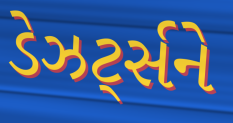
ડેઝર્ટ્સને